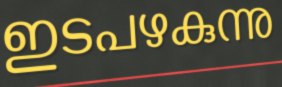
ഇടപഴകുന്നു